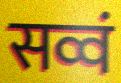
सव्वं